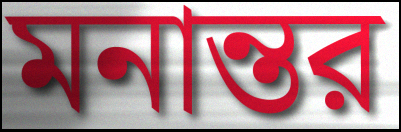
মনান্তর